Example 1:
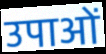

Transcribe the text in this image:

उपाओं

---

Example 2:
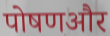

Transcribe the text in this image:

पोषणऔर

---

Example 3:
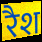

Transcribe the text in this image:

रैश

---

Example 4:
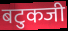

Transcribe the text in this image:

बटुकजी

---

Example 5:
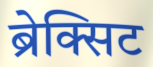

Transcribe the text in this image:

ब्रेक्सिट